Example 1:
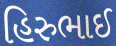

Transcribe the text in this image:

હિરુભાઈ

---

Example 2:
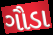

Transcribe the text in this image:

ગૌડા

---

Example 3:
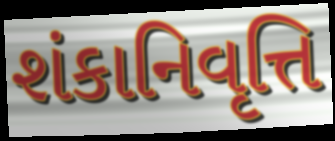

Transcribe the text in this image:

શંકાનિવૃત્તિ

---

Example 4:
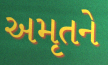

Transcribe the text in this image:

અમૃતને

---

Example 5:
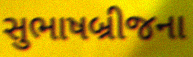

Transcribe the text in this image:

સુભાષબ્રીજના